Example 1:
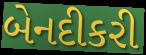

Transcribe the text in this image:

બેનદીકરી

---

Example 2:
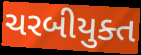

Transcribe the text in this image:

ચરબીયુક્ત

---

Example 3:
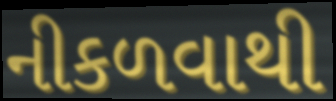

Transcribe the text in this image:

નીકળવાથી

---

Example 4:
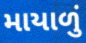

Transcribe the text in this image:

માયાળું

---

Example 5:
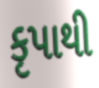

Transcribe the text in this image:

કૃપાથી